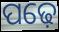
ପଢ଼େ